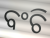
ବଂଚି